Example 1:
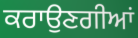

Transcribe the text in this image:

ਕਰਾਉਣਗੀਆਂ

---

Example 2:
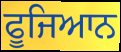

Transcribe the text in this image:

ਫੂਜਿਆਨ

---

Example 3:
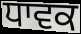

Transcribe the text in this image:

ਧਾਵਕ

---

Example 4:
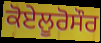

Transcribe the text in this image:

ਕੋਏਲੂਰੋਸੌਰ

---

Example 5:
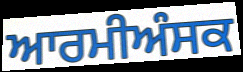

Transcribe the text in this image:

ਆਰਮੀਅੰਸਕ